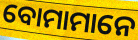
ବୋମାମାନେ